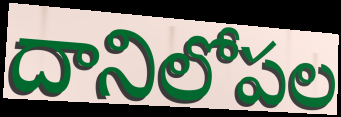
దానిలోపల